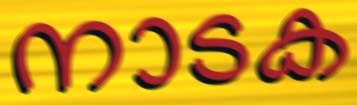
നാടക